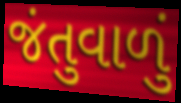
જંતુવાળું